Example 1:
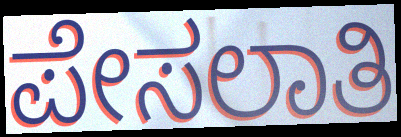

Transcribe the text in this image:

ಪೇಸಲಾತಿ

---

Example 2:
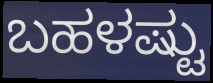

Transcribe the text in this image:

ಬಹಳಷ್ಟು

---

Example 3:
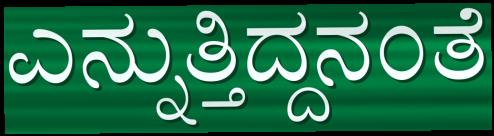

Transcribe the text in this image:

ಎನ್ನುತ್ತಿದ್ದನಂತೆ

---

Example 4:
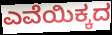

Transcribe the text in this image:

ಎವೆಯಿಕ್ಕದ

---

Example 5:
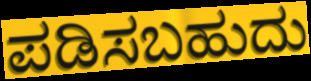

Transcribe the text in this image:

ಪಡಿಸಬಹುದು